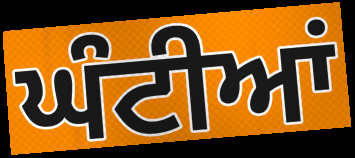
ਘੰਟੀਆਂ